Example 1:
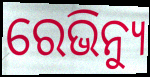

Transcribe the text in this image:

ରେଭିନ୍ୟୁ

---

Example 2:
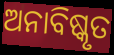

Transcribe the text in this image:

ଅନାବିଷ୍କୃତ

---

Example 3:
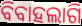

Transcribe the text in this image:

ବିବାହଲାଗି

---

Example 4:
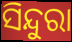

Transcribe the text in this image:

ସିନ୍ଦୁରା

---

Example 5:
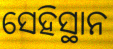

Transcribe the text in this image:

ସେହିସ୍ଥାନ